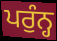
ਪਰੁੰਨ੍ਹ